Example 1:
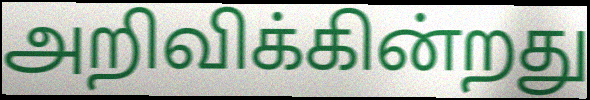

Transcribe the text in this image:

அறிவிக்கின்றது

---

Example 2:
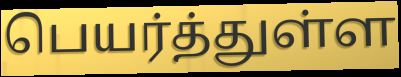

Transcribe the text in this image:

பெயர்த்துள்ள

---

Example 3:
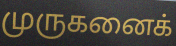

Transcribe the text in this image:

முருகனைக்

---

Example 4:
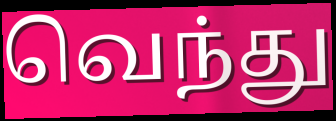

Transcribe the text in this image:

வெந்து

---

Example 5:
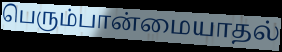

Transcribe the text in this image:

பெரும்பான்மையாதல்